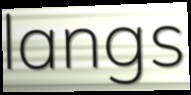
langs